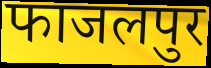
फाजलपुर